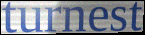
turnest